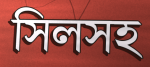
সিলসহ